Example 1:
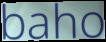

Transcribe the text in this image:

baho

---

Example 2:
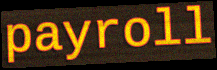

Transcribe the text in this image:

payroll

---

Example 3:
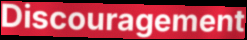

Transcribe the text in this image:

Discouragement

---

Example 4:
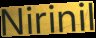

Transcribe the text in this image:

Nirinil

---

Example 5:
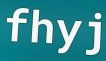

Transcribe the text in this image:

fhyj